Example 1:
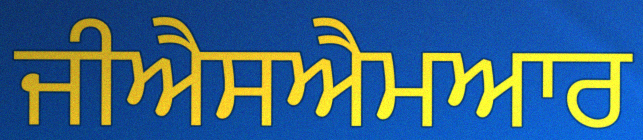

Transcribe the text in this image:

ਜੀਐਸਐਮਆਰ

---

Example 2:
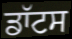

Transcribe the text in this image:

ਡਾੱਟਸ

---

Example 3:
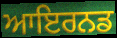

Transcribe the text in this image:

ਆਇਰਨਡ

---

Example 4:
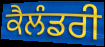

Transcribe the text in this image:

ਕੈਲੰਡਰੀ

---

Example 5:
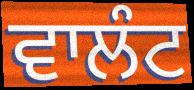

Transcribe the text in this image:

ਵਾਲੰਟ